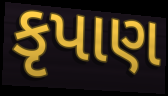
કૃપાણ